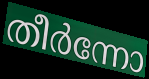
തീർന്നോ